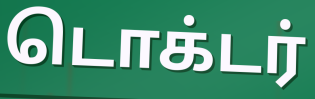
டொக்டர்